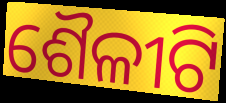
ଶୈଳୀଟି